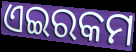
ଏଇରକମ